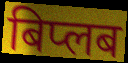
बिप्लब